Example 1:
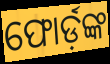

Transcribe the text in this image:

ଫୋର୍ଡ଼ଙ୍କ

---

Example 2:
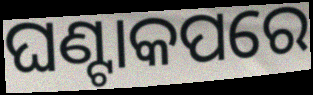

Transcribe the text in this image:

ଘଣ୍ଟାକପରେ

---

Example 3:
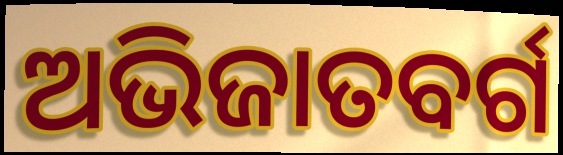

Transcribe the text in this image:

ଅଭିଜାତବର୍ଗ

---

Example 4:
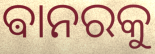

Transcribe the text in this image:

ଵାନରକୁ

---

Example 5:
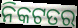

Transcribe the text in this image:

ନିକଟତର